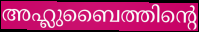
അഹ്ലുബൈത്തിന്റെ